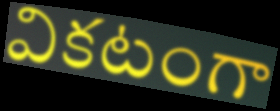
వికటంగా